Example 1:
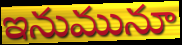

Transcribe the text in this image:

ఇనుమునూ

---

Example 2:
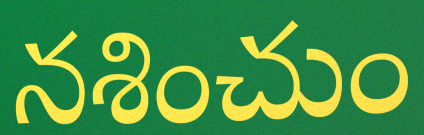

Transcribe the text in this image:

నశించుం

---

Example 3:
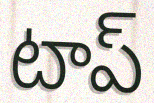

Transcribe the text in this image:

టాప్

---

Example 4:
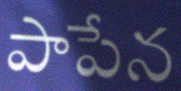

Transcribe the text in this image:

పాపేన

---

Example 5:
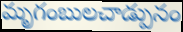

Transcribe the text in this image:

మృగంబులచాడ్పునం